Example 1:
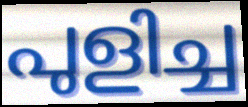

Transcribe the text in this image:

പുളിച്ച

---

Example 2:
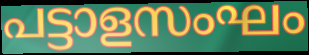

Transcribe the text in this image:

പട്ടാളസംഘം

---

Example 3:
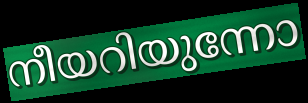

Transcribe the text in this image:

നീയറിയുന്നോ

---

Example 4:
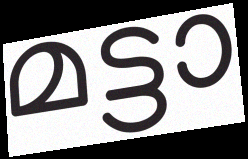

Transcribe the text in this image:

മട്ടാ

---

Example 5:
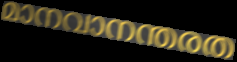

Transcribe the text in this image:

മാനവാനന്തരത